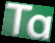
Ta